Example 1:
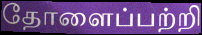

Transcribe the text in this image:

தோளைப்பற்றி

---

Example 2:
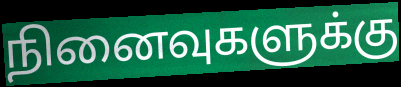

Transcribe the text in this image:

நினைவுகளுக்கு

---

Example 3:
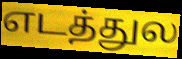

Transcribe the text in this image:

எடத்துல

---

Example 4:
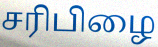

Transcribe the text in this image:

சரிபிழை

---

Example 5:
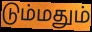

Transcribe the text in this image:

டும்மதும்